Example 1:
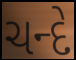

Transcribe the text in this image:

ચન્દે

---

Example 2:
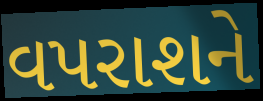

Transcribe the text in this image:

વપરાશને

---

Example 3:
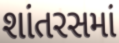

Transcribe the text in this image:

શાંતરસમાં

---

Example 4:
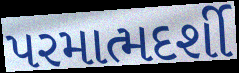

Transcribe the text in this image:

પરમાત્મદર્શી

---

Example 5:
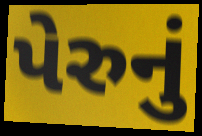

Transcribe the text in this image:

પેરુનું